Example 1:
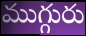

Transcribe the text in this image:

ముగ్గురు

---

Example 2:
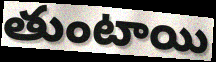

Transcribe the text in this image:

తుంటాయి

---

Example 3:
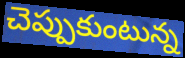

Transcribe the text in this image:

చెప్పుకుంటున్న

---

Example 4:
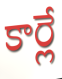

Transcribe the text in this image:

కార్లే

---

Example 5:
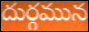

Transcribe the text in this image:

దుర్గమున